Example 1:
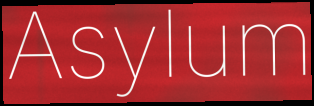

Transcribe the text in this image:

Asylum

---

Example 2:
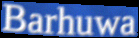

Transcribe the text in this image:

Barhuwa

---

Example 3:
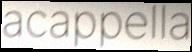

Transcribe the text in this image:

acappella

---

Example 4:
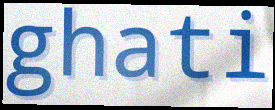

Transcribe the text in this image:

ghati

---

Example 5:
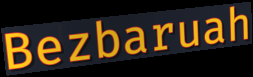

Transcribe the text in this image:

Bezbaruah